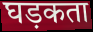
घड़कता